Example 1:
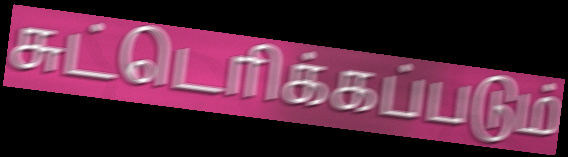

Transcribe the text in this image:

சுட்டெரிக்கப்படும்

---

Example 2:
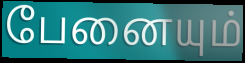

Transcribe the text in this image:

பேனையும்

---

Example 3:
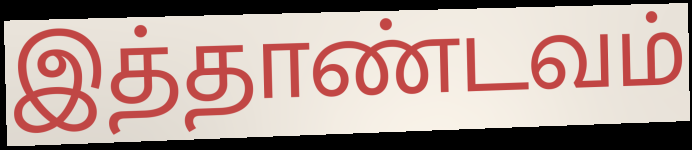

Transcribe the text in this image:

இத்தாண்டவம்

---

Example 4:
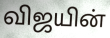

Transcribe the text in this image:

விஜயின்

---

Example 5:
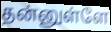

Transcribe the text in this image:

தன்னுள்ளே